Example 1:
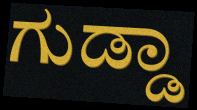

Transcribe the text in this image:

ಗುಡ್ಡಾ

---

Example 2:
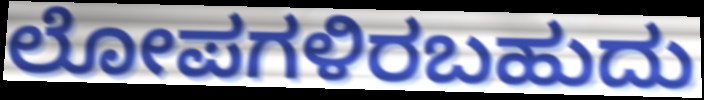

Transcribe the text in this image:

ಲೋಪಗಳಿರಬಹುದು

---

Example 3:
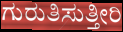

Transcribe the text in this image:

ಗುರುತಿಸುತ್ತೀರಿ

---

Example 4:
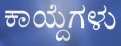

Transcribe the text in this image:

ಕಾಯ್ದೆಗಳು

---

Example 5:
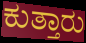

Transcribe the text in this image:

ಕುತ್ತಾರು